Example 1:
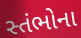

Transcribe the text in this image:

સ્તંભોના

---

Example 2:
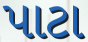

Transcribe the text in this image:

પાટા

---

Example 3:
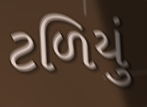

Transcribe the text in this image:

ટળિયું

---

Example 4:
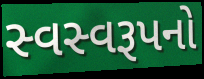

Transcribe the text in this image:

સ્વસ્વરૂપનો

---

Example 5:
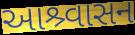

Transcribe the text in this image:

આશ્ર્વાસન